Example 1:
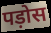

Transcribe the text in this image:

पड़ोस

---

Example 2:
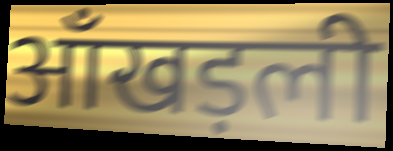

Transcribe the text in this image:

आँखड़ली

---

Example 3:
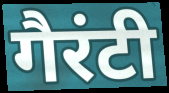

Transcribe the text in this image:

गैरंटी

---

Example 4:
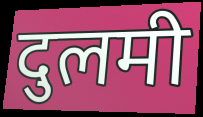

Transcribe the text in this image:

दुलमी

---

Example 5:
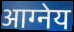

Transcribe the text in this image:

आग्नेय